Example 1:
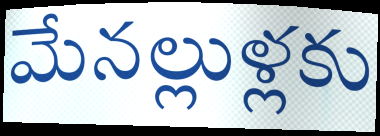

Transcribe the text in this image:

మేనల్లుళ్లకు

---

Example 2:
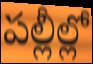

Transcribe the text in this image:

పల్లీల్లో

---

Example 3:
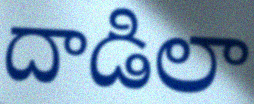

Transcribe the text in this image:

దాడిలా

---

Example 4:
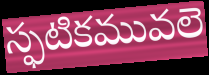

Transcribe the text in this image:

స్ఫటికమువలె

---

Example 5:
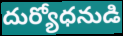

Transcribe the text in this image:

దుర్యోధనుడి